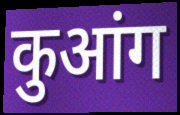
कुआंग